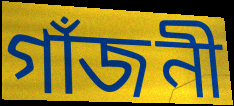
গাঁজনী